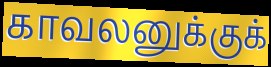
காவலனுக்குக்